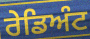
ਰੇਡਿਅੰਟ